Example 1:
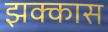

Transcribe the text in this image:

झक्कास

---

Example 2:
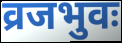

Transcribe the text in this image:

व्रजभुवः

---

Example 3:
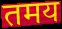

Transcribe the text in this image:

तमय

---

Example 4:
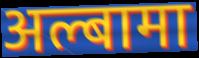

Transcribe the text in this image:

अल्बामा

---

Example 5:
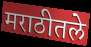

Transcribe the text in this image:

मराठीतले